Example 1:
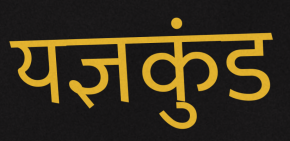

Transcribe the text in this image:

यज्ञकुंड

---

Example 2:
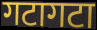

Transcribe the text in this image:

गटागटा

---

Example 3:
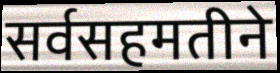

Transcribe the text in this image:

सर्वसहमतीने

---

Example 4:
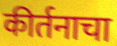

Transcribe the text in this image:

कीर्तनाचा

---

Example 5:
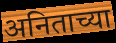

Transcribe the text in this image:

अनिताच्या